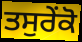
ਤਸੁਰੇਂਕੋ